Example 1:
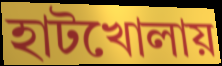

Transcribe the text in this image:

হাটখোলায়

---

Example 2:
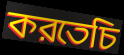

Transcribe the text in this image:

করতেচি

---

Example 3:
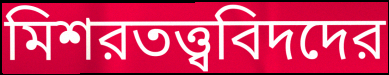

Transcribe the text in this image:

মিশরতত্ত্ববিদদের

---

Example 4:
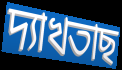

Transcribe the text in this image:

দ্যাখতাছ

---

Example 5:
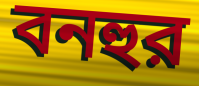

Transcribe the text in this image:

বনহুর